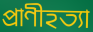
প্রাণীহত্যা